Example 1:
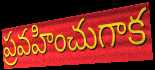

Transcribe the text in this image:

ప్రవహించుగాక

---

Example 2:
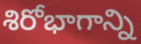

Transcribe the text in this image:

శిరోభాగాన్ని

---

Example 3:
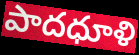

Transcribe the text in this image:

పాదధూళి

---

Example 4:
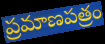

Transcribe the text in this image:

ప్రమాణపత్రం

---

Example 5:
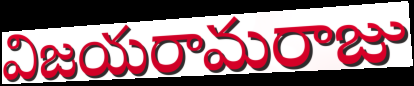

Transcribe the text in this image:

విజయరామరాజు